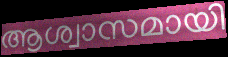
ആശ്വാസമായി